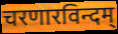
चरणारविन्दम्